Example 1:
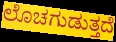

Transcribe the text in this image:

ಲೊಚಗುಡುತ್ತದೆ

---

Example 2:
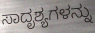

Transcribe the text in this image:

ಸಾದೃಶ್ಯಗಳನ್ನು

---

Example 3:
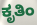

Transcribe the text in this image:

ಕೃತಿಂ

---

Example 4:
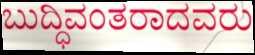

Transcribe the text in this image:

ಬುದ್ಧಿವಂತರಾದವರು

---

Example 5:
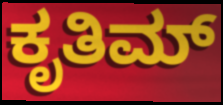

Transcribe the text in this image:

ಕೃತಿಮ್